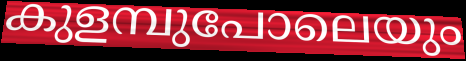
കുളമ്പുപോലെയും